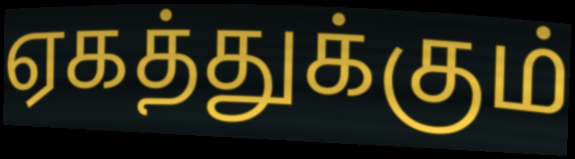
ஏகத்துக்கும்